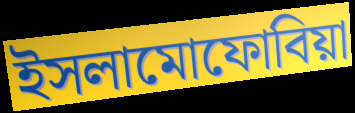
ইসলামোফোবিয়া